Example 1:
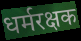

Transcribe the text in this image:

धर्मरक्षक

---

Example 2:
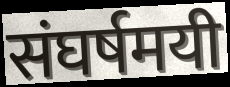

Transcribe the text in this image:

संघर्षमयी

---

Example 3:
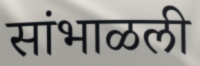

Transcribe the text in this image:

सांभाळली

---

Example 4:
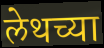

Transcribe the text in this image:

लेथच्या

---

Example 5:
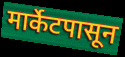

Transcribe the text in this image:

मार्केटपासून